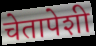
चेतापेशी